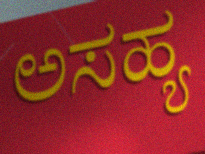
ಅಸಹ್ಯ